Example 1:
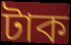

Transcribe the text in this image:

টাক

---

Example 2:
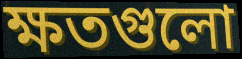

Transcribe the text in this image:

ক্ষতগুলো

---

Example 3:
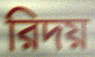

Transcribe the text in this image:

রিদয়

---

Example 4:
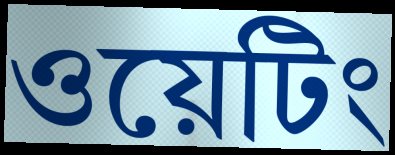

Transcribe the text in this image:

ওয়েটিং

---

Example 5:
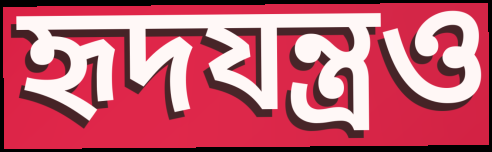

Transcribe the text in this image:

হৃদযন্ত্রও